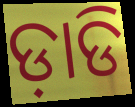
ଡ଼ାଡି